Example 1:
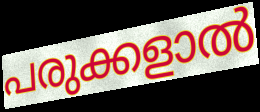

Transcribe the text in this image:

പരുക്കളാൽ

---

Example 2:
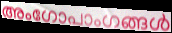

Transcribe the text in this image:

അംഗോപാംഗങ്ങൾ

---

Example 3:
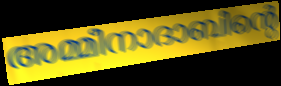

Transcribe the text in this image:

അമ്മീനാദാബിന്റെ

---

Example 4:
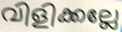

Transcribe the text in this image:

വിളിക്കല്ലേ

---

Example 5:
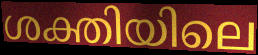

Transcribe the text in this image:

ശക്തിയിലെ